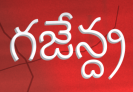
గజేన్ద్ర